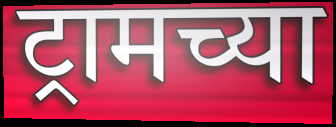
ट्रामच्या